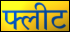
फ्लीट